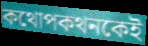
কথোপকথনকেই